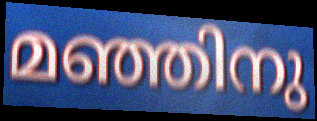
മഞ്ഞിനു